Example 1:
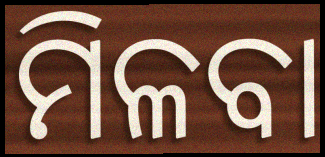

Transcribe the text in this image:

ମିଳବା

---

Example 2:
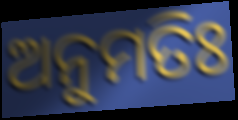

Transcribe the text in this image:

ଅନୁମତିଃ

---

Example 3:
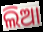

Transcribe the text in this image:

ଲିଆ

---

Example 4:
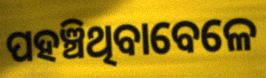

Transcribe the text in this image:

ପହଞ୍ଚିଥିବାବେଳେ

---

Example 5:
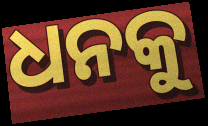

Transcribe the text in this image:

ଧନକୁ